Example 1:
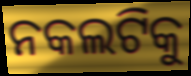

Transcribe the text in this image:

ନକଲଟିକୁ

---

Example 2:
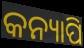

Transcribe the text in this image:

କନ୍ୟାପି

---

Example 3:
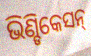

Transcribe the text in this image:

ଭିଣ୍ଡିକେସନ୍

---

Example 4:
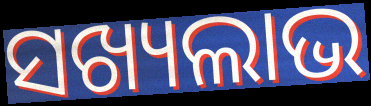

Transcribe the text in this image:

ସଖ୍ୟଲାଭ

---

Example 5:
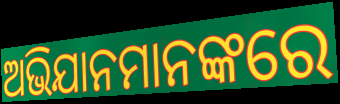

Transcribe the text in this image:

ଅଭିଯାନମାନଙ୍କରେ